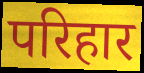
परिहार